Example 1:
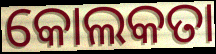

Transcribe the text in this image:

କୋଲକତା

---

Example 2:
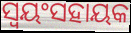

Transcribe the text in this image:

ସ୍ଵୟଂସହାୟକ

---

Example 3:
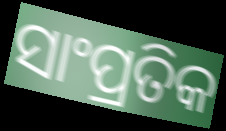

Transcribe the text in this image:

ସାଂପ୍ରତିକ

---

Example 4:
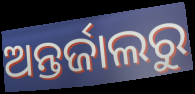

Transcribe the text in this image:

ଅନ୍ତର୍ଜାଲରୁ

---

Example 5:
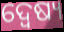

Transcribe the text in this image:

ଦ୍ୱେଷ୍ୟ